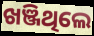
ଖଞ୍ଜିଥିଲେ